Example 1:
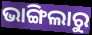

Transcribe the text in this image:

ଭାଙ୍ଗିଲାରୁ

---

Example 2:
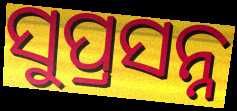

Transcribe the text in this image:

ସୁପ୍ରସନ୍ନ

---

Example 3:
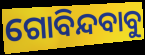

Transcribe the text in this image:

ଗୋବିନ୍ଦବାବୁ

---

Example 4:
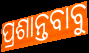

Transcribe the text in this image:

ପ୍ରଶାନ୍ତବାବୁ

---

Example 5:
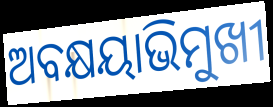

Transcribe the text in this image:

ଅବକ୍ଷୟାଭିମୁଖୀ